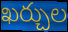
ఖర్చుల